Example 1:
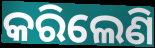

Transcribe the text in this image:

କରିଲେଣି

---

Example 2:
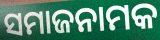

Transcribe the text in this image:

ସମାଜନାମକ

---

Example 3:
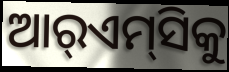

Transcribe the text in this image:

ଆର୍‌ଏମ୍‌ସିକୁ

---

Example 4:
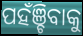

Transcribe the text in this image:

ପହଁଞ୍ଚିବାକୁ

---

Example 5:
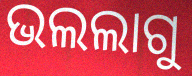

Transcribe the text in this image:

ଭଲଲାଗୁ